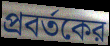
প্রবর্তকের